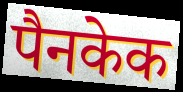
पैनकेक